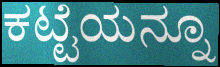
ಕಟ್ಟೆಯನ್ನೂ